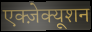
एक्ज़ेक्यूशन